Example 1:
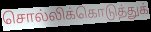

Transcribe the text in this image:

சொல்லிக்கொடுத்துக்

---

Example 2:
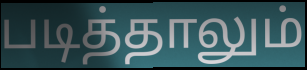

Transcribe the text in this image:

படித்தாலும்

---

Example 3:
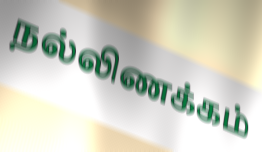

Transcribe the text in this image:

நல்லிணக்கம்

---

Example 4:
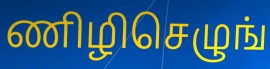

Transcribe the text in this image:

ணிழிசெழுங்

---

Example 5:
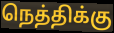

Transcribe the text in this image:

நெத்திக்கு